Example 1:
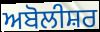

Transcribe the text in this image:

ਅਬੋਲੀਸ਼ਰ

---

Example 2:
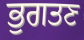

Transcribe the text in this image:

ਭੁਗਤਣ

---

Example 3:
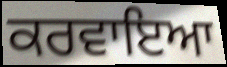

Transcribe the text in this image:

ਕਰਵਾਇਆ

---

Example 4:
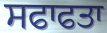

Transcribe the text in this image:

ਸਫਾਫਤਾ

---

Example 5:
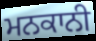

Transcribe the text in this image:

ਮਨਕਾਨੀ